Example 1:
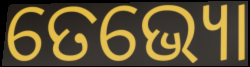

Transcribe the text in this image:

ତେଭ୍ୟୋ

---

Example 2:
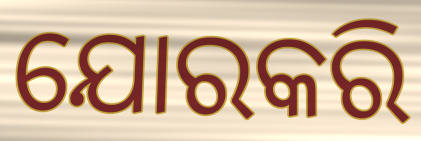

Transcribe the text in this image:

ଯୋରକରି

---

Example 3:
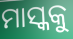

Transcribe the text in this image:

ମାସ୍କକୁ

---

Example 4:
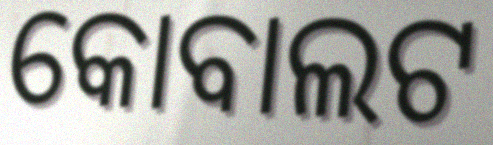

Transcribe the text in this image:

କୋବାଲଟ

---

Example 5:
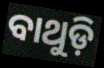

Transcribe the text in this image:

ବାଥୁଡ଼ି